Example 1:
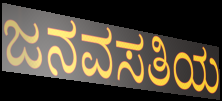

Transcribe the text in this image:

ಜನವಸತಿಯ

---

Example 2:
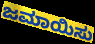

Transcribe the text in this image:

ಜಮಾಯಿಸು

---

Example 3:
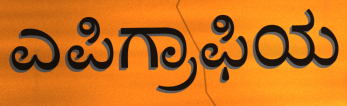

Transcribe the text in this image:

ಎಪಿಗ್ರಾಫಿಯ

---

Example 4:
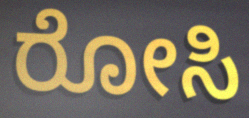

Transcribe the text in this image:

ರೋಸಿ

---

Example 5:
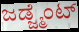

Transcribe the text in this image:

ಜಡ್ಜ್ಮೆಂಟ್